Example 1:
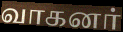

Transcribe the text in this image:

வாகனர்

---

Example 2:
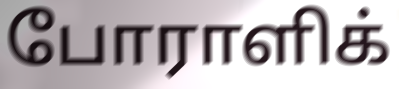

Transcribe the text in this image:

போராளிக்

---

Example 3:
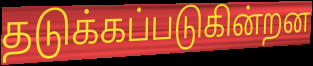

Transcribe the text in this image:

தடுக்கப்படுகின்றன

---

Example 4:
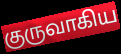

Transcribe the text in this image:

குருவாகிய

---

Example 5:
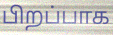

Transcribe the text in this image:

பிறப்பாக